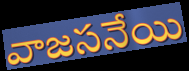
వాజసనేయి